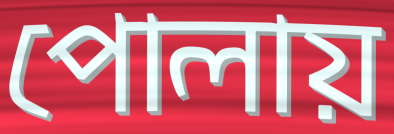
পোলায়